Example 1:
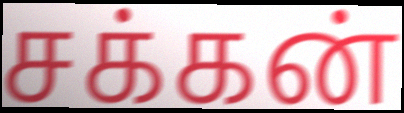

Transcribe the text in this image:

சக்கன்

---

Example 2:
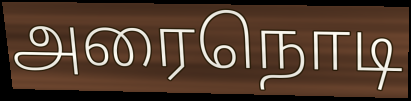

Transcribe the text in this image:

அரைநொடி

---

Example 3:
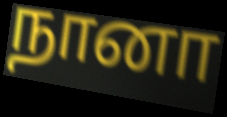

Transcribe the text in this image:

நானா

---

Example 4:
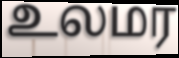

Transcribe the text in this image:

உலமர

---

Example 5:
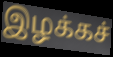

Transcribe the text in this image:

இழக்கச்